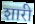
शारी